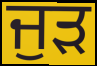
ਜੁੜ